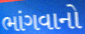
ભાંગવાનો